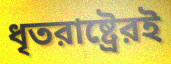
ধৃতরাষ্ট্রেরই